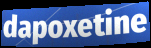
dapoxetine